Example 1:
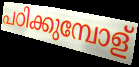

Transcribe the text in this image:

പഠിക്കുമ്പോള്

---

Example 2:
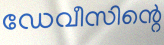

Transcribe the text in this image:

ഡേവീസിന്റെ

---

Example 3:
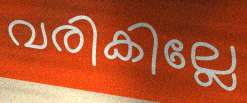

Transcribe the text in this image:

വരികില്ലേ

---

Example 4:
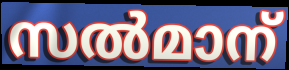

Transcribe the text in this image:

സൽമാന്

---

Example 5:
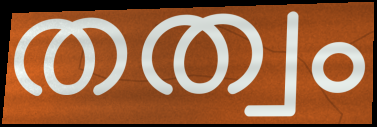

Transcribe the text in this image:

തത്വം